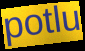
potlu